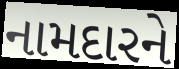
નામદારને